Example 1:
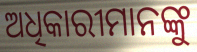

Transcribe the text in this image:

ଅଧିକାରୀମାନଙ୍କୁ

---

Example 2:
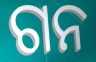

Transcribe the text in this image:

ଗନ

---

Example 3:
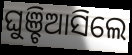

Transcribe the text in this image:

ଘୁଞ୍ଚିଆସିଲେ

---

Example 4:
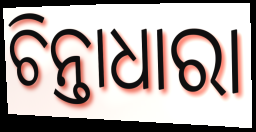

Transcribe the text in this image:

ଚିନ୍ତାଧାରା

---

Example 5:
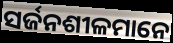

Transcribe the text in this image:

ସର୍ଜନଶୀଳମାନେ